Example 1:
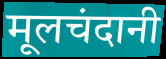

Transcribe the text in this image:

मूलचंदानी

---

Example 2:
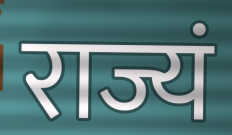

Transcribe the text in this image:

राज्यं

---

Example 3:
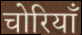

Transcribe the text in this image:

चोरियाँ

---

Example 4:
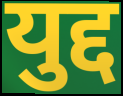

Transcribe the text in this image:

युद्द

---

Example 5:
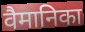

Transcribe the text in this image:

वैमानिका